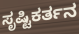
ಸೃಷ್ಟಿಕರ್ತನ